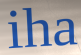
iha